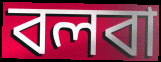
বলবা